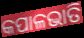
କପାଳଭାତି